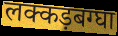
लक्कड़बग्घा